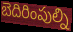
బెదిరింపుల్ని